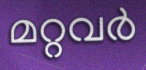
മറ്റവർ